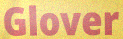
Glover